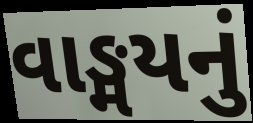
વાઙ્મયનું